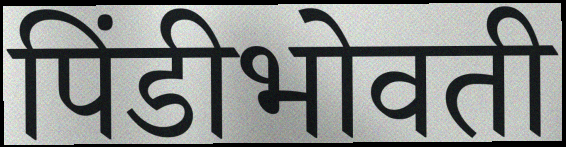
पिंडीभोवती